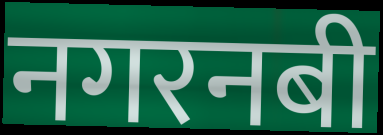
नगरनबी